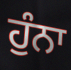
ਹੁੰਨਾ